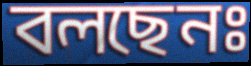
বলছেনঃ